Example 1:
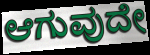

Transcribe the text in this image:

ಆಗುವುದೇ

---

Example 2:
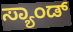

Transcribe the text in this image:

ಸ್ಯಾಂಡ್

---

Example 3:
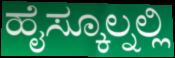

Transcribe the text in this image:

ಹೈಸ್ಕೂಲ್ನಲ್ಲಿ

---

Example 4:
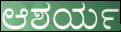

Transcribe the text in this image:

ಆಶರ್ಯ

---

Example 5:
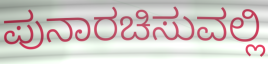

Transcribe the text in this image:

ಪುನಾರಚಿಸುವಲ್ಲಿ